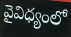
వైవిధ్యంలో